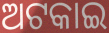
ଅଟକାଇ